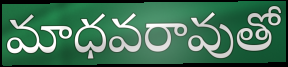
మాధవరావుతో